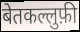
बेतकल्लुफ़ी